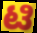
ಟಿ